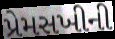
પ્રેમસખીની